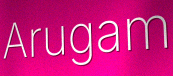
Arugam